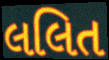
લલિત